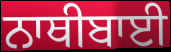
ਨਾਥੀਬਾਈ